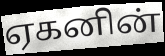
ஏகனின்